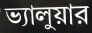
ভ্যালুয়ার